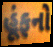
હૂંફનો